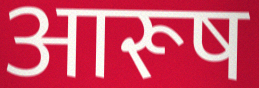
आरूष